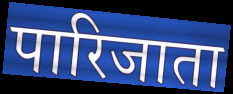
पारिजाता